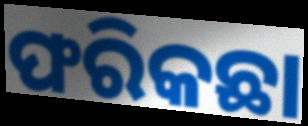
ଫରିକଛା